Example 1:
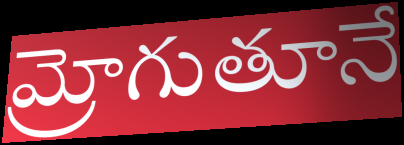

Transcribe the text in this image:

మ్రోగుతూనే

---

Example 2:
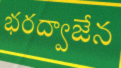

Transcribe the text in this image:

భరద్వాజేన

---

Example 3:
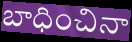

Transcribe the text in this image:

బాధించినా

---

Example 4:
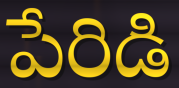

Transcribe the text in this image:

పేరిడి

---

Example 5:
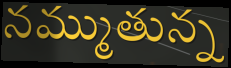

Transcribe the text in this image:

నమ్ముతున్న